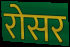
रोसर